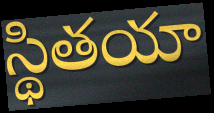
స్థితయా